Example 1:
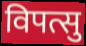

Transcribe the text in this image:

विपत्सु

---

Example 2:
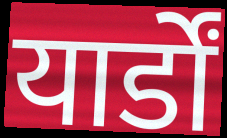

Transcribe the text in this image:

यार्डों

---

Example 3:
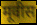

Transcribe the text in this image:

मूवीस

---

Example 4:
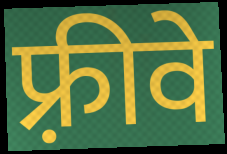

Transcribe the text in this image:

फ़्रीवे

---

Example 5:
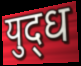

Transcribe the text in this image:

युद्ध